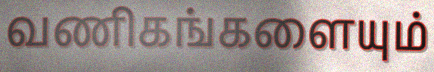
வணிகங்களையும்